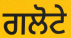
ਗਲੋਟੇ